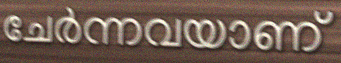
ചേർന്നവയാണ്